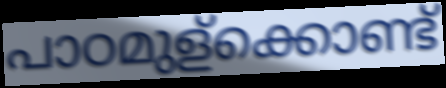
പാഠമുള്ക്കൊണ്ട്